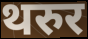
थरुर